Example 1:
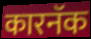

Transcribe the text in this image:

कारनॅक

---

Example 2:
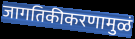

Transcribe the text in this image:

जागतिकीकरणामुळं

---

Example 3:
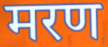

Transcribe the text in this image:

मरण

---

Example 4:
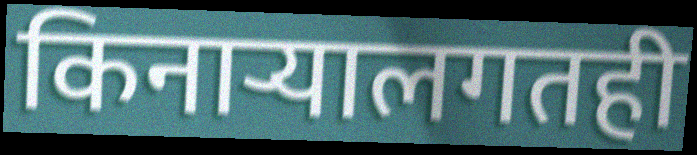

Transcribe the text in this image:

किनाऱ्यालगतही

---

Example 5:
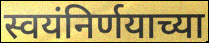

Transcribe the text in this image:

स्वयंनिर्णयाच्या